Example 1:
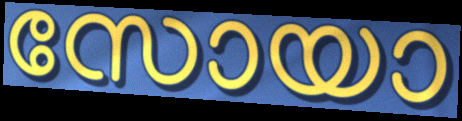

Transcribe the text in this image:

സോയാ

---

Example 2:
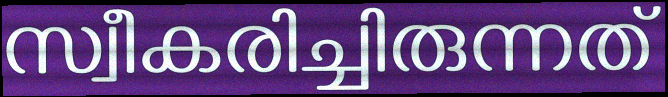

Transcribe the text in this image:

സ്വീകരിച്ചിരുന്നത്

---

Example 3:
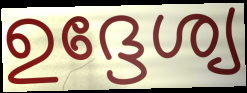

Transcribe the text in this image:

ഉദ്ദേശ്യ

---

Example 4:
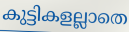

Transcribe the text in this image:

കുട്ടികളല്ലാതെ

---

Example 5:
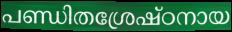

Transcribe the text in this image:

പണ്ഡിതശ്രേഷ്ഠനായ